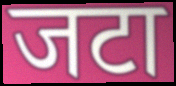
जटा